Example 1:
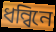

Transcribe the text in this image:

ধন্বিনে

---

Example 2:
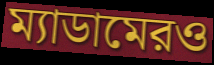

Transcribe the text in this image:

ম্যাডামেরও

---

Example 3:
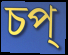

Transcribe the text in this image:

চপ্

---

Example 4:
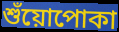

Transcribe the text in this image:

শুঁয়োপোকা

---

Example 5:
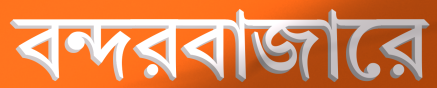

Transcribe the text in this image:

বন্দরবাজারে